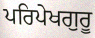
ਪਰਿਪੇਖਗੁਰੂ